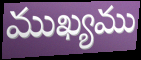
ముఖ్యము